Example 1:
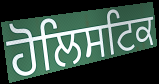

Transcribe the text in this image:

ਹੋਲਿਸਟਿਕ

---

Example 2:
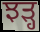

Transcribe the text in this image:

ਝੜ੍ਹ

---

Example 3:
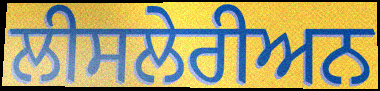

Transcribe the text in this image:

ਲੀਸਲੇਰੀਅਨ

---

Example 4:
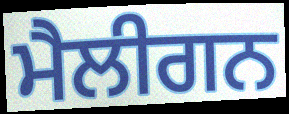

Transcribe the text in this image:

ਮੈਲੀਗਨ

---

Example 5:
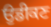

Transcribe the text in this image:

ਉਡੀਕਣ